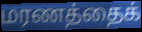
மரணத்தைக்